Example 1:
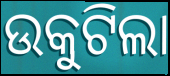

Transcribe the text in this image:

ଉକୁଟିଲା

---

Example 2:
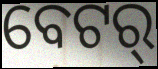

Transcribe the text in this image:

ବେଟର୍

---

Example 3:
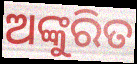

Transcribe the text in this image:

ଅଙ୍କୁରିତ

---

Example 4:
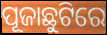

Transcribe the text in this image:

ପୂଜାଛୁଟିରେ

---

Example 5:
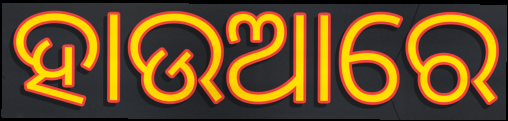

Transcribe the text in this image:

ହାଉଆରେ